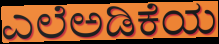
ಎಲೆಅಡಿಕೆಯ